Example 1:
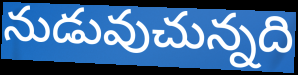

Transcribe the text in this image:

నుడువుచున్నది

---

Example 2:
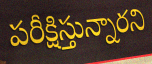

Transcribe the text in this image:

పరీక్షిస్తున్నారని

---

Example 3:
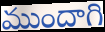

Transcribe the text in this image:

ముందాగి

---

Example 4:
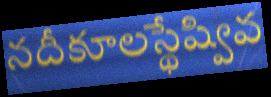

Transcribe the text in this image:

నదీకూలస్థేష్వివ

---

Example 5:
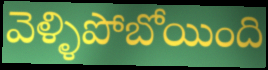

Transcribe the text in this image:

వెళ్ళిపోబోయింది